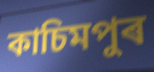
কাচিমপুৰ